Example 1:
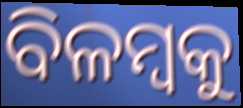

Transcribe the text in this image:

ବିଳମ୍ୱକୁ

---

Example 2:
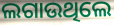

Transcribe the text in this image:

ଲଗାଉଥିଲେ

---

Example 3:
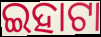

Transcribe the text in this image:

ଇହାଟା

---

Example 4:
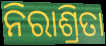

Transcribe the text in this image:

ନିରାଶ୍ରିତା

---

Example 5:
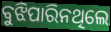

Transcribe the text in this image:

ବୁଝିପାରିନଥିଲେ